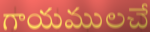
గాయములచే